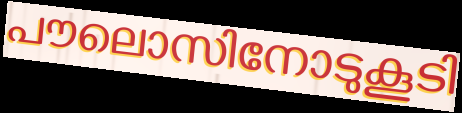
പൗലൊസിനോടുകൂടി